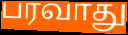
பரவாது